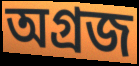
অগ্রজ